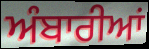
ਅੰਬਾਰੀਆਂ